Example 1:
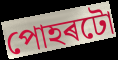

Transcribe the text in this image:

পোহৰটো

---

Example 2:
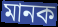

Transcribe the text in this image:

মানক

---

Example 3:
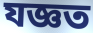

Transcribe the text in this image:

যজ্ঞত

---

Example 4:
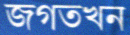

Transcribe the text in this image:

জগতখন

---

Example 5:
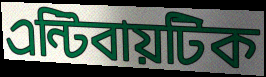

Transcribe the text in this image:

এন্টিবায়টিক